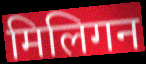
मिलिगन